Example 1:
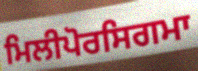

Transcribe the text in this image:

ਮਿਲੀਪੋਰਸਿਗਮਾ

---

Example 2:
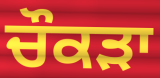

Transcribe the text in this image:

ਚੌਕੜਾ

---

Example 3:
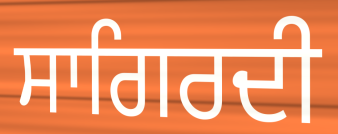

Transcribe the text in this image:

ਸਾਗਿਰਦੀ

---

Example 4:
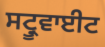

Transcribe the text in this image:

ਸਟ੍ਰੂਵਾਈਟ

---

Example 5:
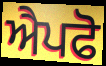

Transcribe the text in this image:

ਐਪਫੋ